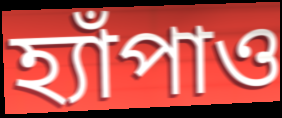
হ্যাঁপাও